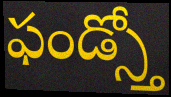
ఫండ్స్తో